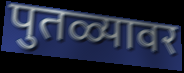
पुतळ्यावर